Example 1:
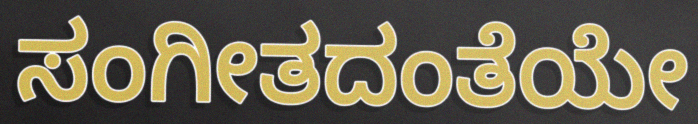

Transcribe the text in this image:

ಸಂಗೀತದಂತೆಯೇ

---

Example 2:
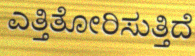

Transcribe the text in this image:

ಎತ್ತಿತೋರಿಸುತ್ತಿದೆ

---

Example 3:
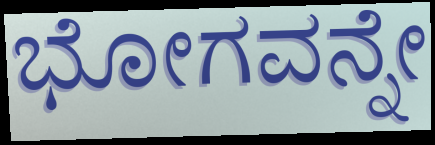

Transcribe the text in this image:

ಭೋಗವನ್ನೇ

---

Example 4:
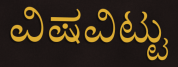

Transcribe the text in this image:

ವಿಷವಿಟ್ಟು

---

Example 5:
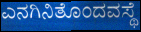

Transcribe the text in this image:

ಎನಗಿನಿತೊಂದವಸ್ಥೆ